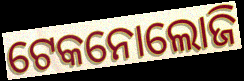
ଟେକନୋଲୋଜି